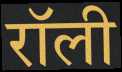
रॉली